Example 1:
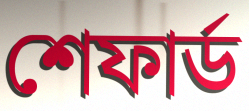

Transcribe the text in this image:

শেফার্ড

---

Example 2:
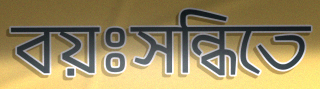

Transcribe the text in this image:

বয়ঃসন্ধিতে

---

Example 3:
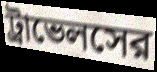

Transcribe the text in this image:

ট্রাভেলসের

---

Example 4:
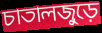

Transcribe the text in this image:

চাতালজুড়ে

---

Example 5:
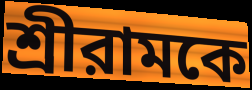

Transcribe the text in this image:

শ্রীরামকে